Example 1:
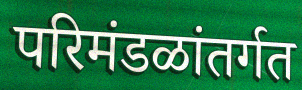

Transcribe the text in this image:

परिमंडळांतर्गत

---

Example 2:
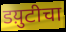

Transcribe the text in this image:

डय़ुटीचा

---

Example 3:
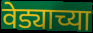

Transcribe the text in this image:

वेड्याच्या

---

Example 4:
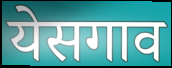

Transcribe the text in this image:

येसगाव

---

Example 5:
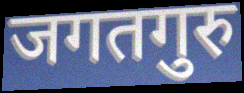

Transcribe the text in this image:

जगतगुरु